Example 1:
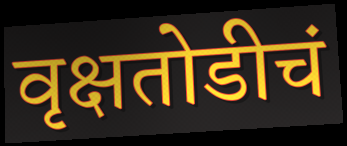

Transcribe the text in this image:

वृक्षतोडीचं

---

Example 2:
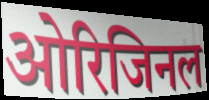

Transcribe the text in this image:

ओरिजिनल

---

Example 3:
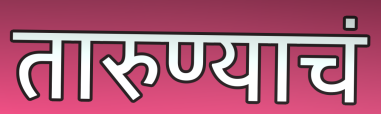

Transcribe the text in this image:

तारुण्याचं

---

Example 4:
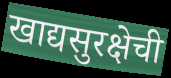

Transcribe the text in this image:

खाद्यसुरक्षेची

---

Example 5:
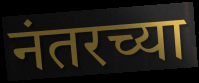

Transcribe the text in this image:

नंतरच्या